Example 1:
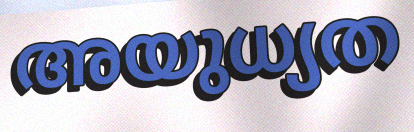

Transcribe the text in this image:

അയുധ്യത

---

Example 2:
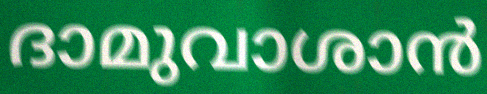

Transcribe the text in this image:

ദാമുവാശാൻ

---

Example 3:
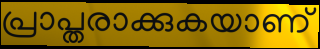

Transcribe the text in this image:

പ്രാപ്തരാക്കുകയാണ്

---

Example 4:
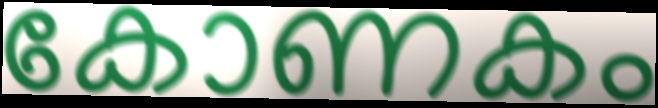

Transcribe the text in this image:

കോണകം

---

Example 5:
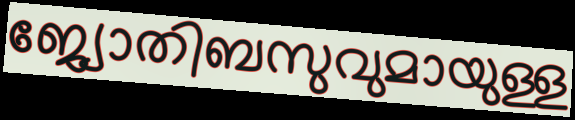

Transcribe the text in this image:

ജ്യോതിബസുവുമായുള്ള